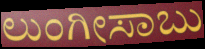
ಲುಂಗೀಸಾಬು